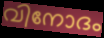
വിനോദം